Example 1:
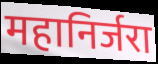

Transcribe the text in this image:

महानिर्जरा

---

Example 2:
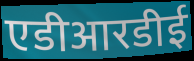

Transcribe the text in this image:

एडीआरडीई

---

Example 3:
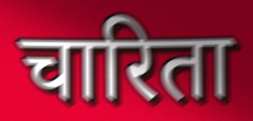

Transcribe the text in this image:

चारिता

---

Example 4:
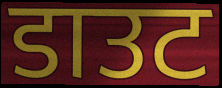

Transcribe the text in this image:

डाउट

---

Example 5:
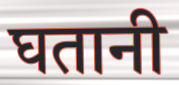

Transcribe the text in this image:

घतानी